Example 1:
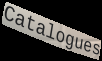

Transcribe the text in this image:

Catalogues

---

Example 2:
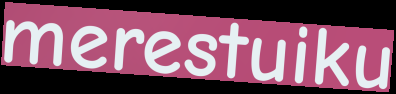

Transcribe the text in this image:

merestuiku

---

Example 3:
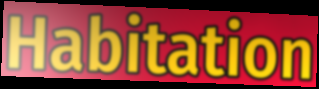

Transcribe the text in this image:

Habitation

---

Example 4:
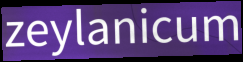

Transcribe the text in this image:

zeylanicum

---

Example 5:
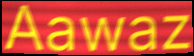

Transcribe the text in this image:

Aawaz